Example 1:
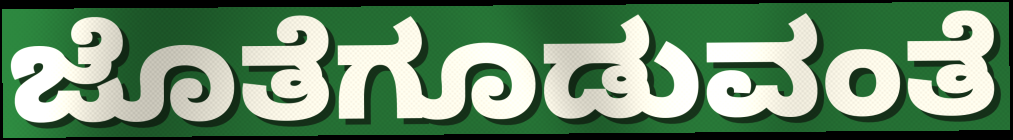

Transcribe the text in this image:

ಜೊತೆಗೂಡುವಂತೆ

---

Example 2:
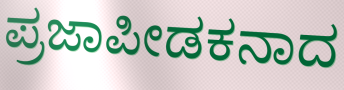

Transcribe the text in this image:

ಪ್ರಜಾಪೀಡಕನಾದ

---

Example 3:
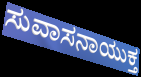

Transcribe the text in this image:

ಸುವಾಸನಾಯುಕ್ತ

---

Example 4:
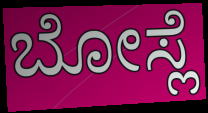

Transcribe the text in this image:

ಬೋಸ್ಲೆ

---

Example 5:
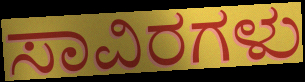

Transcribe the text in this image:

ಸಾವಿರಗಳು